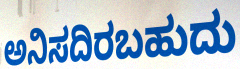
ಅನಿಸದಿರಬಹುದು